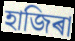
হাজিৰা